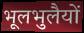
भूलभुलैयों